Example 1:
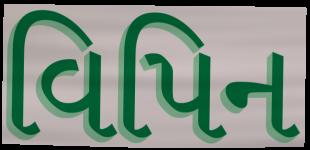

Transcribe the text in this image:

વિપિન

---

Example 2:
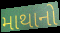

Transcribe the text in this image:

માથાનો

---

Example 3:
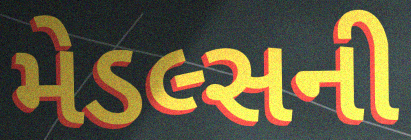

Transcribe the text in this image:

મેડલ્સની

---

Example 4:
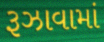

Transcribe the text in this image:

રૂઝાવામાં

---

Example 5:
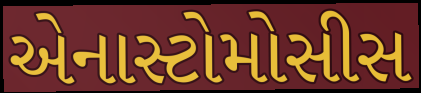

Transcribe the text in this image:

એનાસ્ટોમોસીસ